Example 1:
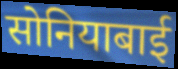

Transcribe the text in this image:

सोनियाबाई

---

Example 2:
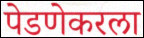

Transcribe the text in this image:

पेडणेकरला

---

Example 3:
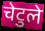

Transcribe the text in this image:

चेटुले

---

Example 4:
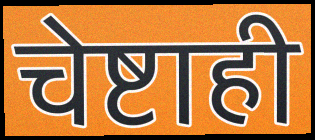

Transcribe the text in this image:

चेष्टाही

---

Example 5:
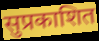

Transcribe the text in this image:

सुप्रकाशित